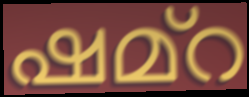
ഷമ്റ